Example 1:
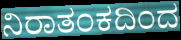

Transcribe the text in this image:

ನಿರಾತಂಕದಿಂದ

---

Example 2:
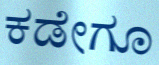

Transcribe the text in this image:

ಕಡೇಗೂ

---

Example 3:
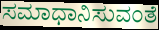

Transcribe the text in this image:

ಸಮಾಧಾನಿಸುವಂತೆ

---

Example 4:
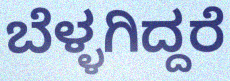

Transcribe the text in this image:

ಬೆಳ್ಳಗಿದ್ದರೆ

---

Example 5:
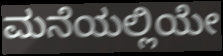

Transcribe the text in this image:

ಮನೆಯಲ್ಲಿಯೇ